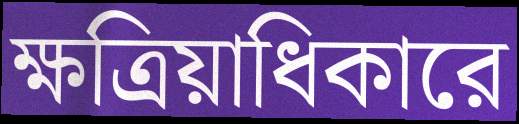
ক্ষত্রিয়াধিকারে